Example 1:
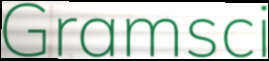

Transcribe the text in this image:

Gramsci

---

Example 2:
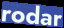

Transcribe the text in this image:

rodar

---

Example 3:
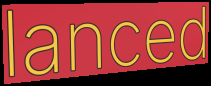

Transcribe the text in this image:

lanced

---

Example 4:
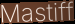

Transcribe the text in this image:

Mastiff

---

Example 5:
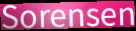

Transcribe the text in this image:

Sorensen